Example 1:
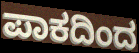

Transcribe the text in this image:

ಪಾಕದಿಂದ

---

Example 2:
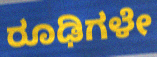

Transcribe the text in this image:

ರೂಢಿಗಳೇ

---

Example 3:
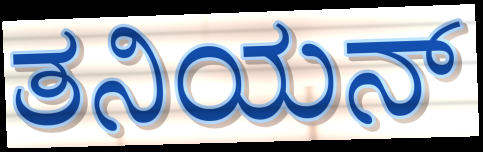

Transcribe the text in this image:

ತನಿಯನ್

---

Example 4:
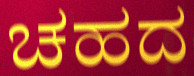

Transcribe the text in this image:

ಚಹದ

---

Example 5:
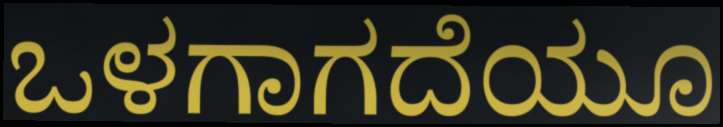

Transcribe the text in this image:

ಒಳಗಾಗದೆಯೂ